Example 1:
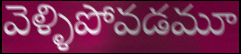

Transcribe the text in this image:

వెళ్ళిపోవడమూ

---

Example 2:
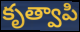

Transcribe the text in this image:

కృత్వాపి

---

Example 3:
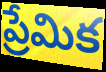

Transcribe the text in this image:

ప్రేమిక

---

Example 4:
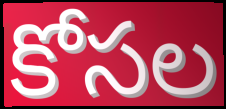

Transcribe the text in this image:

కోసల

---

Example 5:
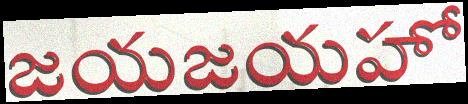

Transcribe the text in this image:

జయజయహో